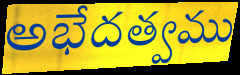
అభేదత్వము